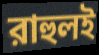
রাহুলই